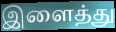
இளைத்து